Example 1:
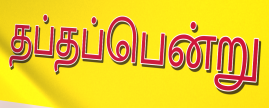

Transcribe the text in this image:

தப்தப்பென்று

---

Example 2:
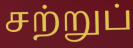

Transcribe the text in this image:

சற்றுப்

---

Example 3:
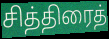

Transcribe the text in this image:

சித்திரைத்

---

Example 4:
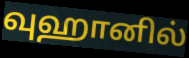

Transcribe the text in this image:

வுஹானில்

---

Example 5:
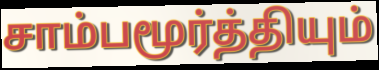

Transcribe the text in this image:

சாம்பமூர்த்தியும்